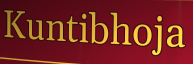
Kuntibhoja